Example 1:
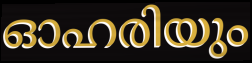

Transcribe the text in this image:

ഓഹരിയും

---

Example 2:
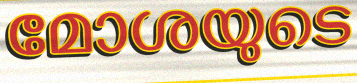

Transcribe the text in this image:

മോശയുടെ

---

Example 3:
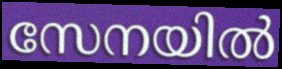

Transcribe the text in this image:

സേനയിൽ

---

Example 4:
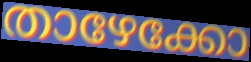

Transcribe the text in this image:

താഴേക്കോ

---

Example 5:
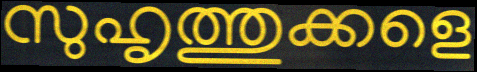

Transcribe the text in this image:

സുഹൃത്തുക്കളെ